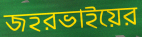
জহরভাইয়ের